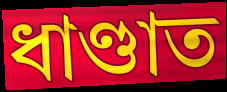
ধাণ্ডাত